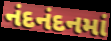
નંદનંદનમાં